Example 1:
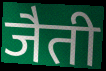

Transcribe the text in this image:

जैती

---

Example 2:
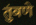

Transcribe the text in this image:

तुंबणे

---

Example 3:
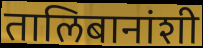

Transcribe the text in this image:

तालिबानांशी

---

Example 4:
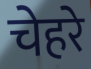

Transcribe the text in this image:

चेहरे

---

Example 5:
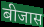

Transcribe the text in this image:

बीजास